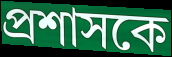
প্ৰশাসকে